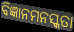
ବିଜ୍ଞାନମନସ୍କତା